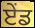
ਏੰਡ